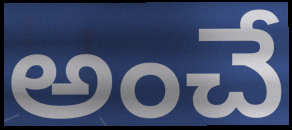
అంచే